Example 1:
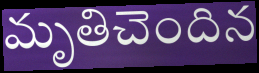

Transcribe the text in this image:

మృతిచెందిన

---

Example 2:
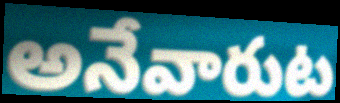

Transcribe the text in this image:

అనేవారుట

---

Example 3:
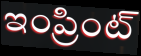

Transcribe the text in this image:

ఇంప్రింట్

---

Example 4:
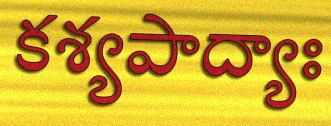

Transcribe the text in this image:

కశ్యపాద్యాః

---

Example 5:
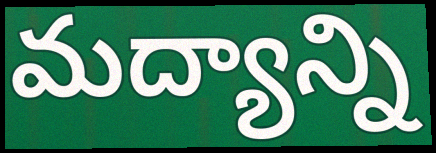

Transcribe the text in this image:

మద్యాన్ని